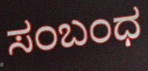
ಸಂಬಂಧ